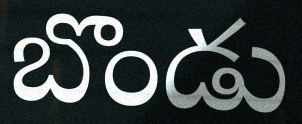
బొండు